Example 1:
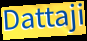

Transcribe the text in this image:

Dattaji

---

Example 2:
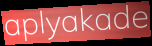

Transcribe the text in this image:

aplyakade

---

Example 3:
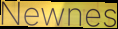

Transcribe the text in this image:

Newnes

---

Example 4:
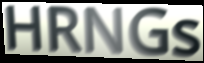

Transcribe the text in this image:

HRNGs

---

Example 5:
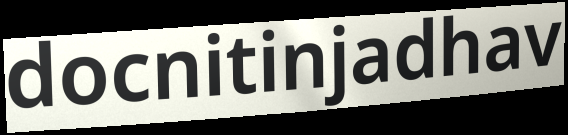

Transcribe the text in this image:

docnitinjadhav